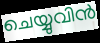
ചെയ്യുവിൻ